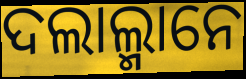
ଦଲାଲ୍ମାନେ